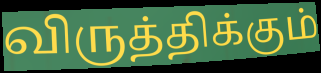
விருத்திக்கும்